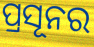
ପ୍ରସୂନର